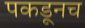
पकडूनच